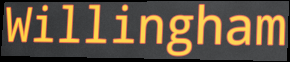
Willingham